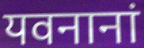
यवनानां